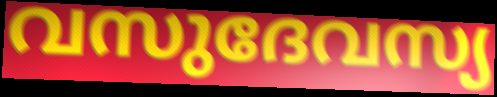
വസുദേവസ്യ